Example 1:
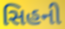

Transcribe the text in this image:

સિહની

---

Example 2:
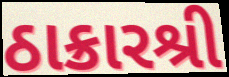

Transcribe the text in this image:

ઠાક્રારશ્રી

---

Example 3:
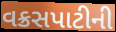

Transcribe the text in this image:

વક્રસપાટીની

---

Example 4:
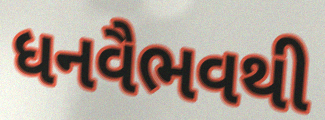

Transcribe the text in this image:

ધનવૈભવથી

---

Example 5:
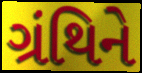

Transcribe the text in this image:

ગ્રંથિને